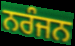
ਨਰੰਜਨ